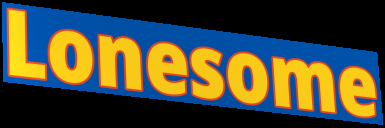
Lonesome